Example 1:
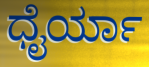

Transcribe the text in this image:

ಧೈರ್ಯಾ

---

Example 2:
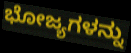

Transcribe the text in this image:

ಭೋಜ್ಯಗಳನ್ನು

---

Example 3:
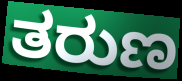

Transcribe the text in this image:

ತರುಣ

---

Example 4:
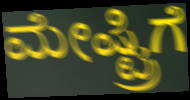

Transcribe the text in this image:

ಮೇಷ್ಟ್ರಿಗೆ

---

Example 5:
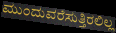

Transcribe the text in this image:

ಮುಂದುವರೆಸುತ್ತಿರಲಿಲ್ಲ